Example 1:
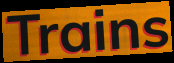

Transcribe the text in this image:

Trains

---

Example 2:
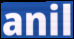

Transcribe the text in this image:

anil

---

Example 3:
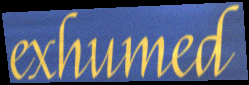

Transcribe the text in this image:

exhumed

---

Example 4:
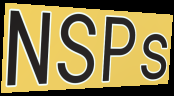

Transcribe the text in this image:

NSPs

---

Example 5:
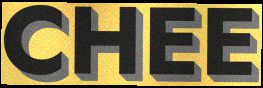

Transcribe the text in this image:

CHEE